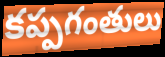
కప్పగంతులు